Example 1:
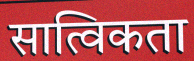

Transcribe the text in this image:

सात्विकता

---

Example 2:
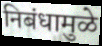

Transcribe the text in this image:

निबंधामुळे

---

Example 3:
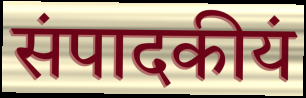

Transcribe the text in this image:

संपादकीयं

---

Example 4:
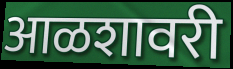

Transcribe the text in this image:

आळशावरी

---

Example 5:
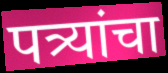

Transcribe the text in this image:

पत्र्यांचा